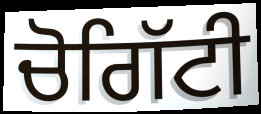
ਚੋਗਿੱਟੀ